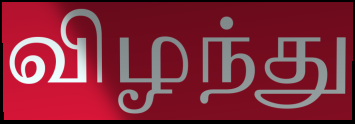
விழந்து